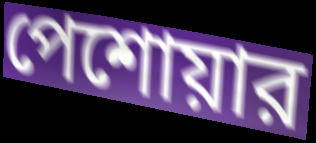
পেশোয়ার